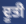
ਦੂਤੀ